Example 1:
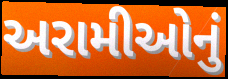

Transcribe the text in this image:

અરામીઓનું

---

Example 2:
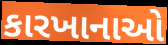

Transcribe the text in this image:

કારખાનાઓ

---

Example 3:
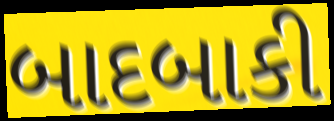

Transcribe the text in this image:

બાદબાકી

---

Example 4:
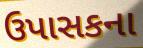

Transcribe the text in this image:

ઉપાસકના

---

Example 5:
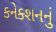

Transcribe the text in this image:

કનેક્શનનું